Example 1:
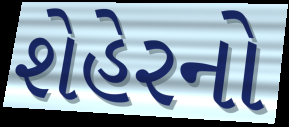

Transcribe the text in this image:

શેહેરનો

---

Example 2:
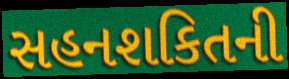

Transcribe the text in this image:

સહનશકિતની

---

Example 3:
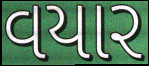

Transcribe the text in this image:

વયાર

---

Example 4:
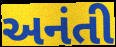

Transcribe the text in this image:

અનંતી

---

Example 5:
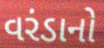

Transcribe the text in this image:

વરંડાનો